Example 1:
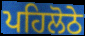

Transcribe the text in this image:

ਪਹਿਲੋਠੇ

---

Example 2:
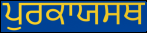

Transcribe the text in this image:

ਪੁਰਕਾਯਸਥ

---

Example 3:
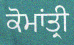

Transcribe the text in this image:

ਕੋਮਾਂਤ੍ਰੀ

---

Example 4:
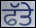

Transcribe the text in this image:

ਫੱਤੇ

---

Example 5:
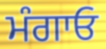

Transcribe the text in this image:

ਮੰਗਾਓ